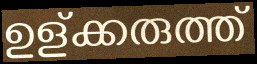
ഉള്ക്കരുത്ത്